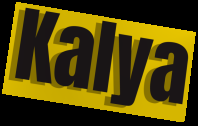
Kalya